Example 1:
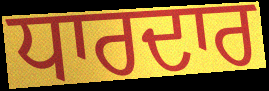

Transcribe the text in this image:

ਧਾਰਦਾਰ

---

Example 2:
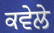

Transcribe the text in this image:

ਕਵੇਲੇ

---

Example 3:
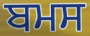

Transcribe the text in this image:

ਬਮਸ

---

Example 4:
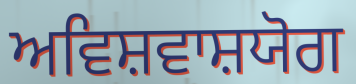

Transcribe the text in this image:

ਅਵਿਸ਼ਵਾਸ਼ਯੋਗ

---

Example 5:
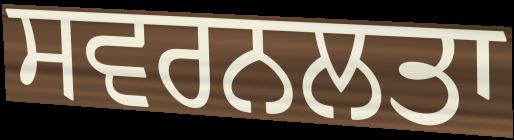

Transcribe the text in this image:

ਸਵਰਨਲਤਾ